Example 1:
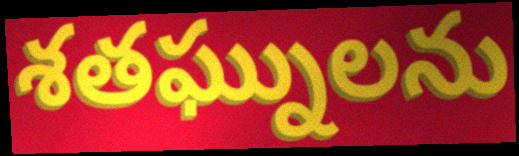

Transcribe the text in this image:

శతఘ్నులను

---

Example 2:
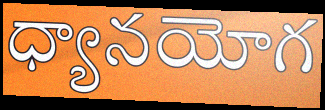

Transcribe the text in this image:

ధ్యానయోగ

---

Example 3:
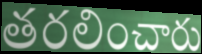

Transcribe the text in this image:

తరలించారు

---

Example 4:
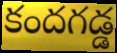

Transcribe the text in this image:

కందగడ్డ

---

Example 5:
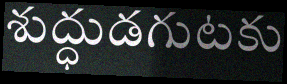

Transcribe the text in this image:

శుద్ధుడగుటకు